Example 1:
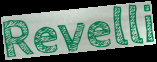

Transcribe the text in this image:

Revelli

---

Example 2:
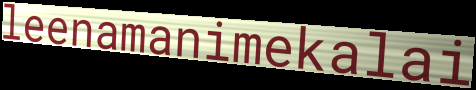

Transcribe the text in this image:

leenamanimekalai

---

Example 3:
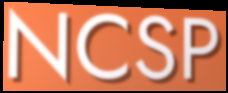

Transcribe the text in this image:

NCSP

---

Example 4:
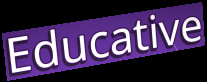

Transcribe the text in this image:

Educative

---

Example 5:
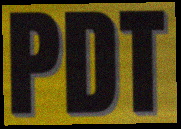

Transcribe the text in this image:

PDT